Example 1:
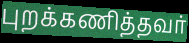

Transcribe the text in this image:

புறக்கணித்தவர்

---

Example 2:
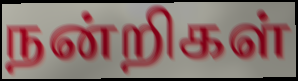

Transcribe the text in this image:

நன்றிகள்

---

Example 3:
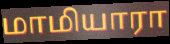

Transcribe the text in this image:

மாமியாரா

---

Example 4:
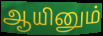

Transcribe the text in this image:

ஆயினும்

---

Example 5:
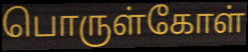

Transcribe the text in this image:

பொருள்கோள்